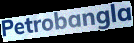
Petrobangla